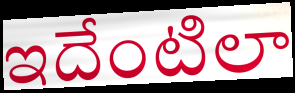
ఇదేంటిలా